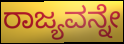
ರಾಜ್ಯವನ್ನೇ